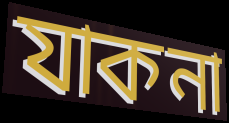
যাকনা